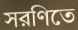
সরণিতে